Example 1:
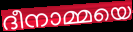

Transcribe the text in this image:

ദീനാമ്മയെ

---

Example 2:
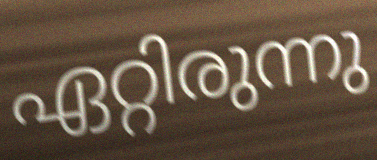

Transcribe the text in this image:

ഏറ്റിരുന്നു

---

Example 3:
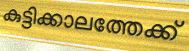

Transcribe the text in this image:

കുട്ടിക്കാലത്തേക്ക്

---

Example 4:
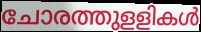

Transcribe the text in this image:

ചോരത്തുളളികൾ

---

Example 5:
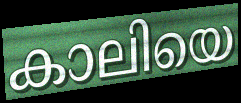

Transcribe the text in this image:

കാലിയെ